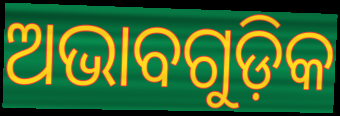
ଅଭାବଗୁଡ଼ିକ